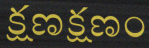
క్షణక్షణం